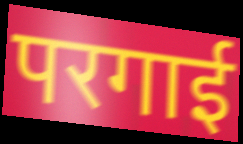
परगाई